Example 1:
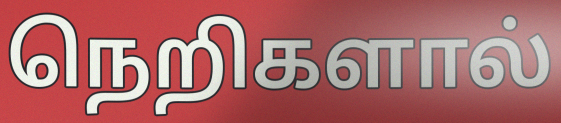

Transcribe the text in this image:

நெறிகளால்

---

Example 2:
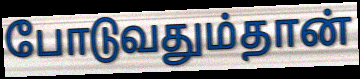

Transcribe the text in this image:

போடுவதும்தான்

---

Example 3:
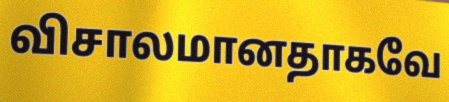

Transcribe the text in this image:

விசாலமானதாகவே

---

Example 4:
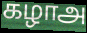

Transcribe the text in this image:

கழாஅ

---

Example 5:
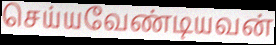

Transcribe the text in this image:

செய்யவேண்டியவன்